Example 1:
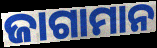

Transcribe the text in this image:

ଜାଗାମାନ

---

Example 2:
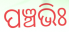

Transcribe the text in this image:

ପଞ୍ଚଭିଃ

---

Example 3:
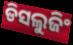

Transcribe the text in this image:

ଡିସଲୁଜିଂ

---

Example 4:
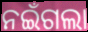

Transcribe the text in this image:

ନଇଁଗଲା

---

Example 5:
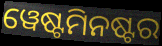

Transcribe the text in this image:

ୱେଷ୍ଟମିନଷ୍ଟର